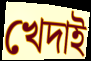
খেদাই